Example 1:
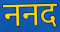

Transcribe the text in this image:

ननद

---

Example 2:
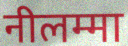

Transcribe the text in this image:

नीलम्मा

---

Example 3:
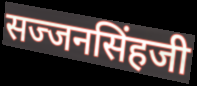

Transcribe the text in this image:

सज्जनसिंहजी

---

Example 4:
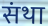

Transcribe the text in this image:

संथा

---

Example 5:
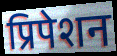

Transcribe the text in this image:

प्रिपेशन